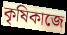
কৃষিকাজে